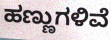
ಹಣ್ಣುಗಳಿವೆ